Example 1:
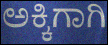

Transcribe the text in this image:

ಅಕ್ಕಿಗಾಗಿ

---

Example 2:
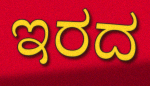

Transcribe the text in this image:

ಇರದ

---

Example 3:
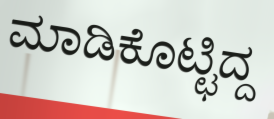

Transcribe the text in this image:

ಮಾಡಿಕೊಟ್ಟಿದ್ದ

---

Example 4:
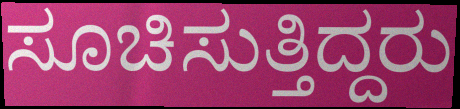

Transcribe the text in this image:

ಸೂಚಿಸುತ್ತಿದ್ದರು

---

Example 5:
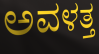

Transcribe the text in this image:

ಅವಳತ್ತ